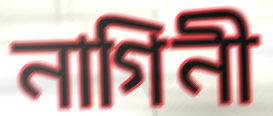
নাগিনী